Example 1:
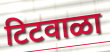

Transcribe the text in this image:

टिटवाळा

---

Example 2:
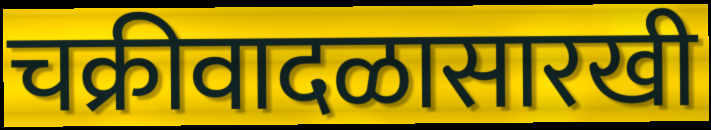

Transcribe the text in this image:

चक्रीवादळासारखी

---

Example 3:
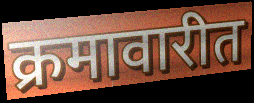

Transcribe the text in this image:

क्रमावारीत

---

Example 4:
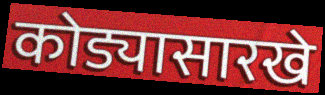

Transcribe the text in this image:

कोड्यासारखे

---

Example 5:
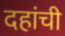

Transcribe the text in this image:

दहांची